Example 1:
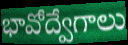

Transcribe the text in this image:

భావోద్వేగాలు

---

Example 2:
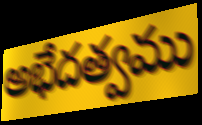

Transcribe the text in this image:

అభేదత్వము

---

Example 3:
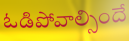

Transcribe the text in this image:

ఓడిపోవాల్సిందే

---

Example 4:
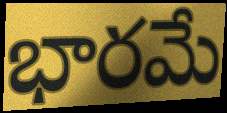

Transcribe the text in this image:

భారమే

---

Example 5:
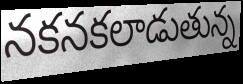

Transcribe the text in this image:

నకనకలాడుతున్న